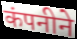
कंपनीने